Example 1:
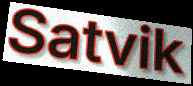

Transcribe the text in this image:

Satvik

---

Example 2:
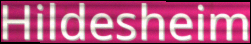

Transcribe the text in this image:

Hildesheim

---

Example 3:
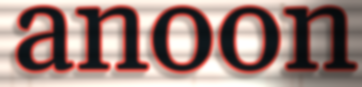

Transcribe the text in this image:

anoon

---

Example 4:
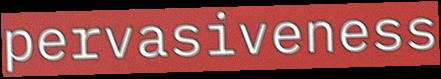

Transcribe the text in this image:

pervasiveness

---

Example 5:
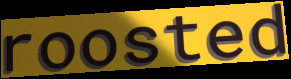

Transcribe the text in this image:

roosted